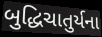
બુદ્ધિચાતુર્યના